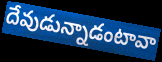
దేవుడున్నాడంటావా